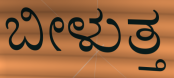
ಬೀಳುತ್ತ